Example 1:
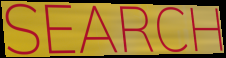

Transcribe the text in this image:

SEARCH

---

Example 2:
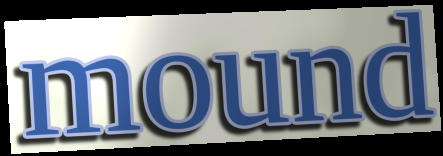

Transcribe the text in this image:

mound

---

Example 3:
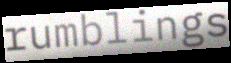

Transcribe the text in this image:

rumblings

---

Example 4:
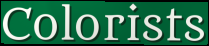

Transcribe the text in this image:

Colorists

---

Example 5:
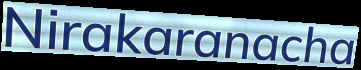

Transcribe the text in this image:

Nirakaranacha